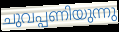
ചുവപ്പണിയുന്നു